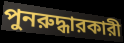
পুনরুদ্ধারকারী